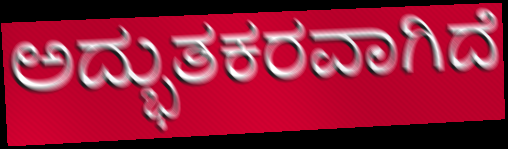
ಅದ್ಭುತಕರವಾಗಿದೆ